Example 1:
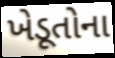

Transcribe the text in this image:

ખેડૂતોના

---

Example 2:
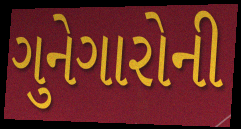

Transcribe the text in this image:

ગુનેગારોની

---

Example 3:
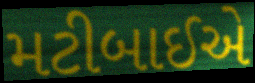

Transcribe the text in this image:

મટીબાઈએ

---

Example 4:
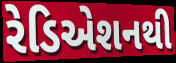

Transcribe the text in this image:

રેડિએશનથી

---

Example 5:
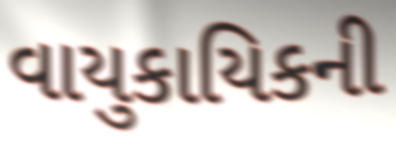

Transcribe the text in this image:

વાયુકાયિકની